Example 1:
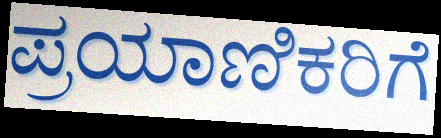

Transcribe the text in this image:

ಪ್ರಯಾಣಿಕರಿಗೆ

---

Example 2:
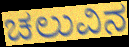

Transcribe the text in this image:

ಚಲುವಿನ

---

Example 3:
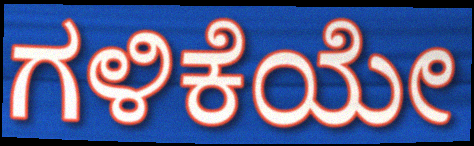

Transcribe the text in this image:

ಗಳಿಕೆಯೇ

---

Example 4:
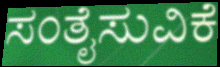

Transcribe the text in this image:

ಸಂತೈಸುವಿಕೆ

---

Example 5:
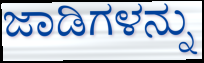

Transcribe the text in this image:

ಜಾಡಿಗಳನ್ನು